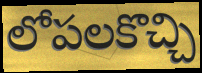
లోపలకొచ్చి